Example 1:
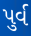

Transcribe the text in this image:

પુર્વ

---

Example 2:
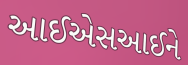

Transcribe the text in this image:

આઈએસઆઈને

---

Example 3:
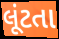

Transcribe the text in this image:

લૂંટતા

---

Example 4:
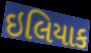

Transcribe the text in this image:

ઇલિયાક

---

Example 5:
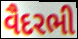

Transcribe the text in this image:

વૈદરભી